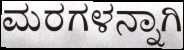
ಮರಗಳನ್ನಾಗಿ